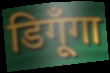
डिगूँगा